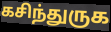
கசிந்துருக